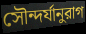
সৌন্দর্যানুরাগ